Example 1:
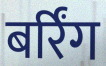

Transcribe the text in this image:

बर्रिंग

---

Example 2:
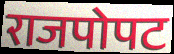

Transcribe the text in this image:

राजपोपट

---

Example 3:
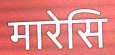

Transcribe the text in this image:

मारेसि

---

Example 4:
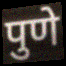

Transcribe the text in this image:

पुणे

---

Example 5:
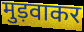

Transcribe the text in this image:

मुड़वाकर